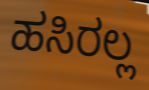
ಹಸಿರಲ್ಲ